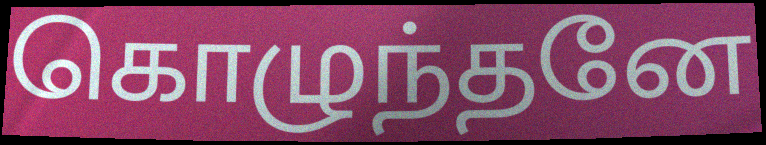
கொழுந்தனே